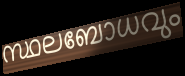
സ്ഥലബോധവും